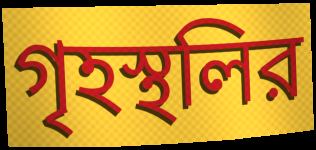
গৃহস্থলির